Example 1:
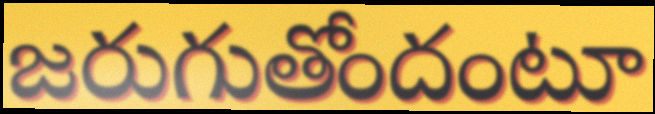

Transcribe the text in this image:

జరుగుతోందంటూ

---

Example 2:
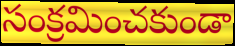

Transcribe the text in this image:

సంక్రమించకుండా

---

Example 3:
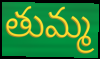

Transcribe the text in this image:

తుమ్మ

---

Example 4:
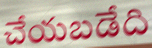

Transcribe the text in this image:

చేయబడేది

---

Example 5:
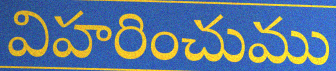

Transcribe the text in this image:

విహరించుము